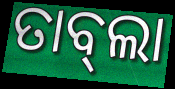
ତାବ୍‌ଲା